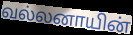
வல்லனாயின்